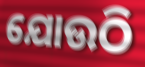
ଯୋଉଠି